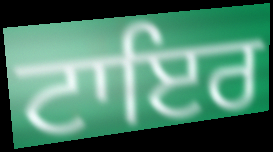
ਟਾਇਰ